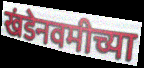
खंडेनवमीच्या